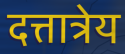
दत्तात्रेय